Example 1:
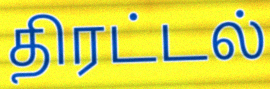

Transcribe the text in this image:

திரட்டல்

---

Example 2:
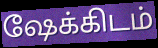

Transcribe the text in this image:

ஷேக்கிடம்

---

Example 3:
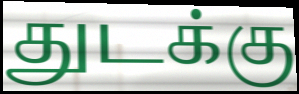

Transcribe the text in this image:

துடக்கு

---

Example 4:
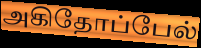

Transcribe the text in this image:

அகிதோப்பேல்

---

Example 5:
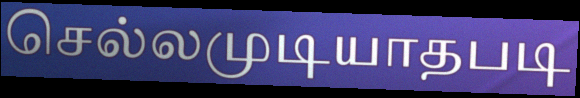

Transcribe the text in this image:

செல்லமுடியாதபடி